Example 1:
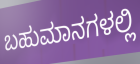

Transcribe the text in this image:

ಬಹುಮಾನಗಳಲ್ಲಿ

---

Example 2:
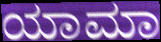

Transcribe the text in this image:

ಯಾಮಾ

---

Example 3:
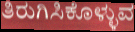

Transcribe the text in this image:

ತಿರುಗಿಸಿಕೊಳ್ಳುವ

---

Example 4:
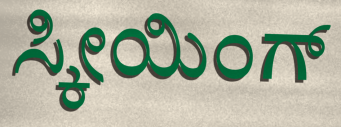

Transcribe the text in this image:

ಸ್ಕೀಯಿಂಗ್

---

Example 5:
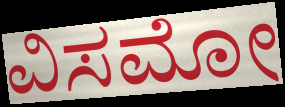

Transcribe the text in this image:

ವಿಸಮೋ